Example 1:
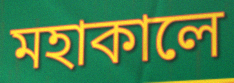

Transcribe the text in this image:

মহাকালে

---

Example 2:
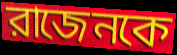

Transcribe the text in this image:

রাজেনকে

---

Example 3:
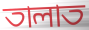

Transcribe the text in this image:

তালাত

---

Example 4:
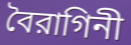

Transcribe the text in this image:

বৈরাগিনী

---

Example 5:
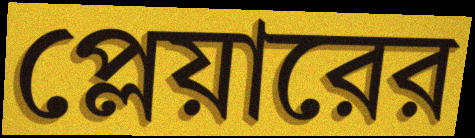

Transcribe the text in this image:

প্লেয়ারের